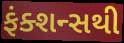
ફંક્શન્સથી